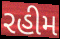
રહીમ